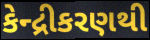
કેન્દ્રીકરણથી